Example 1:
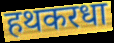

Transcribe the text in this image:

हथकरधा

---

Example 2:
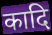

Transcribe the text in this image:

कादि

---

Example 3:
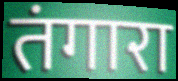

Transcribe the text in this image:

तंगारा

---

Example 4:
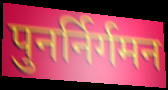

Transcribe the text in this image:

पुनर्निर्गमन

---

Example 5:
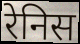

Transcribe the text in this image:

रेनिस